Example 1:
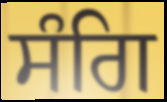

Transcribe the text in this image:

ਸੰਗਿ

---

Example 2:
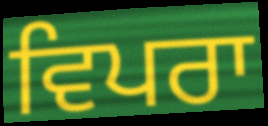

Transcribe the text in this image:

ਵਿਪਰਾ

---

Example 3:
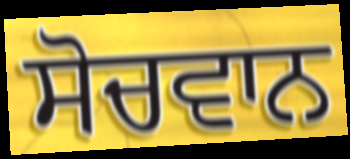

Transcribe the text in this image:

ਸੋਚਵਾਨ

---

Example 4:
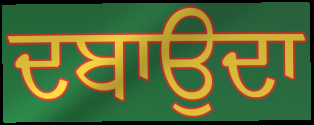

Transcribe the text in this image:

ਦਬਾਉਦਾ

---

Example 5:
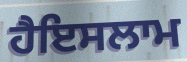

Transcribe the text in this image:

ਹੈਇਸਲਾਮ